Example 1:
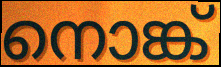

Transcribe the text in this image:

നൊങ്ക്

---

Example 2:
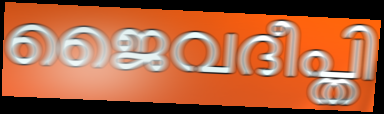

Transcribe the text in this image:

ജൈവദീപ്തി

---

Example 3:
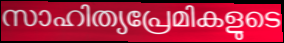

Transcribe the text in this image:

സാഹിത്യപ്രേമികളുടെ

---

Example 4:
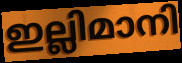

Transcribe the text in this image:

ഇല്ലിമാനി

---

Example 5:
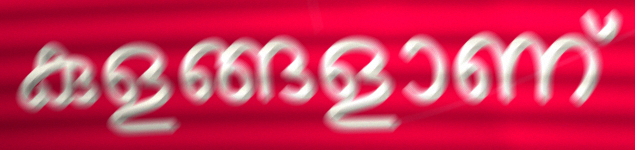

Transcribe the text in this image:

കുളങ്ങളാണ്